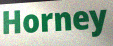
Horney